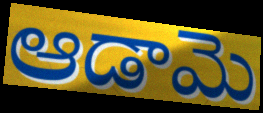
ఆడామె